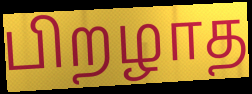
பிறழாத